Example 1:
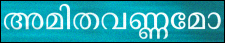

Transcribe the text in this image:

അമിതവണ്ണമോ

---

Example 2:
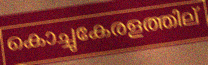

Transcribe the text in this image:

കൊച്ചുകേരളത്തില്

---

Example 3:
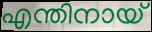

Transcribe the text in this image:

എന്തിനായ്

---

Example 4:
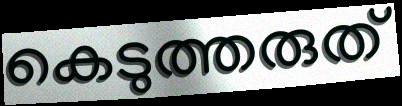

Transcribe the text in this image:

കെടുത്തരുത്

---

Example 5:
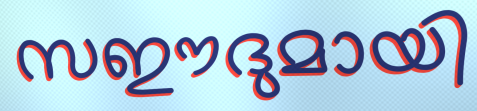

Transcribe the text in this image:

സഈദുമായി